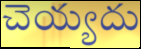
చెయ్యదు